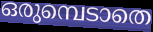
ഒരുമ്പെടാതെ